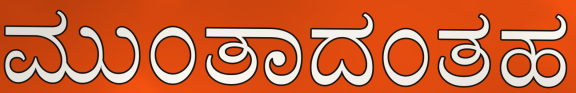
ಮುಂತಾದಂತಹ